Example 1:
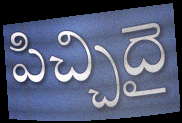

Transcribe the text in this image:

పిచ్చిదై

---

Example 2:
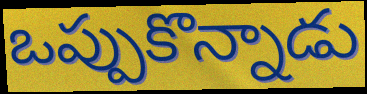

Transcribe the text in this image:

ఒప్పుకొన్నాడు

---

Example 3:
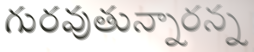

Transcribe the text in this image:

గురవుతున్నారన్న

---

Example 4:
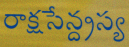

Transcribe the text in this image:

రాక్షసేన్ద్రస్య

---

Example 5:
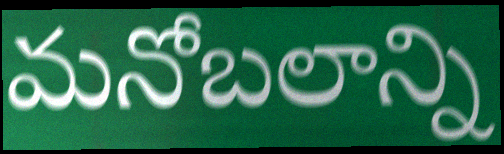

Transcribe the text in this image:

మనోబలాన్ని